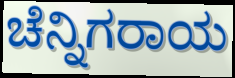
ಚೆನ್ನಿಗರಾಯ